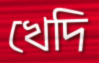
খেদি